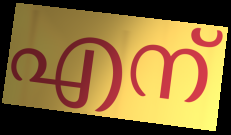
എന്